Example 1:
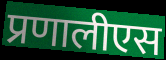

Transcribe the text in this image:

प्रणालीएस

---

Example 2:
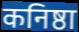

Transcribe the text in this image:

कनिष्ठा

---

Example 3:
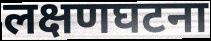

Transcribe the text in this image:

लक्षणघटना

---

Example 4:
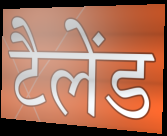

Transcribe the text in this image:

टैलेंड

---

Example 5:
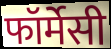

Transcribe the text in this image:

फॉर्मेसी